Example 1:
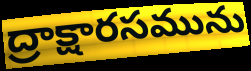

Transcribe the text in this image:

ద్రాక్షారసమును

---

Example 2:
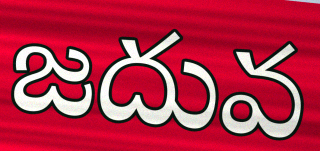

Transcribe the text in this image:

జదువ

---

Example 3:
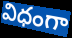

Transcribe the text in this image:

విధంగా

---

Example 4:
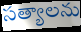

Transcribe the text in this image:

సత్యాలను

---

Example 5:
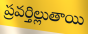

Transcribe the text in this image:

ప్రవర్తిల్లుతాయి